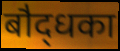
बौद्धका